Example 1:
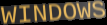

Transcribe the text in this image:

WINDOWS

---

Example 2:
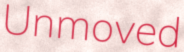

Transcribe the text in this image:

Unmoved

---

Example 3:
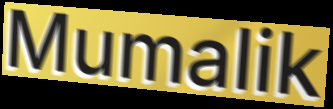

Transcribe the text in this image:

Mumalik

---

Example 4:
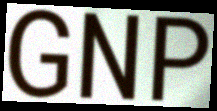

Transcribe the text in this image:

GNP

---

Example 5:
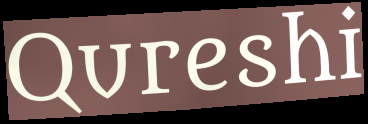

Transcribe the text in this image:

Qureshi